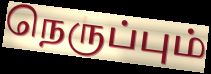
நெருப்பும்